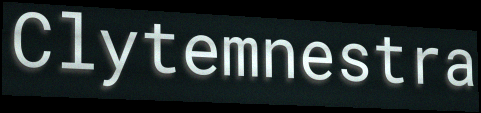
Clytemnestra